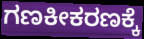
ಗಣಕೀಕರಣಕ್ಕೆ